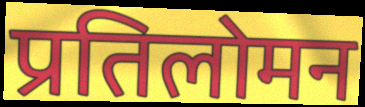
प्रतिलोमन